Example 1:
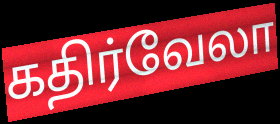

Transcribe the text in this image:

கதிர்வேலா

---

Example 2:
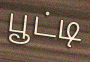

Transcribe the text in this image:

பூட்டி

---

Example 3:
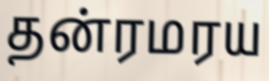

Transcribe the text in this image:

தன்ரமரய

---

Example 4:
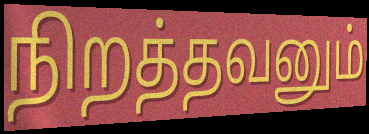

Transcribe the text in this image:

நிறத்தவனும்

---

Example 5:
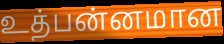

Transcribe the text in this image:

உத்பன்னமான